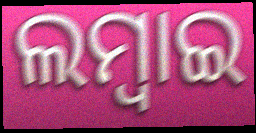
ଲମ୍ବାଇ